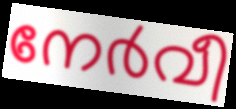
നേർവീ